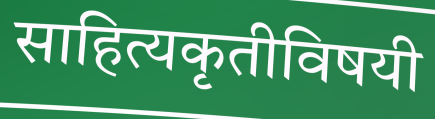
साहित्यकृतीविषयी